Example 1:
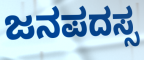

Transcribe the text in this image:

ಜನಪದಸ್ಸ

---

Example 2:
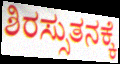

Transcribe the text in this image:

ಶಿರಸ್ಸುತನಕ್ಕೆ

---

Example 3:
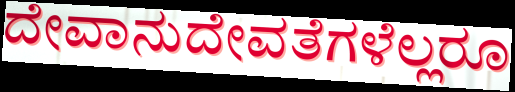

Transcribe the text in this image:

ದೇವಾನುದೇವತೆಗಳೆಲ್ಲರೂ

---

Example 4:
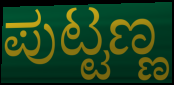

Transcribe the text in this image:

ಪುಟ್ಟಣ್ಣ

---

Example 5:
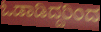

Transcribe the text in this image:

ಓಡಾಡಿದ್ದರಿಂದ